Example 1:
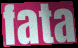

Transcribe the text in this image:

fata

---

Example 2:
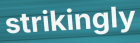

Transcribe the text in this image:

strikingly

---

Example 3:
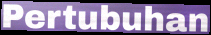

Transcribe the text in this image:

Pertubuhan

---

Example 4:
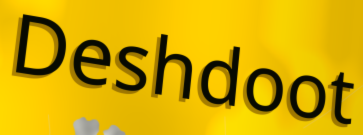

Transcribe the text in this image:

Deshdoot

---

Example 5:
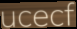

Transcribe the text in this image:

ucecf